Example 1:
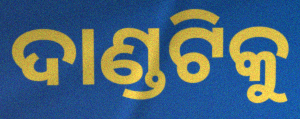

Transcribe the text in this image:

ଦାଣ୍ଡଟିକୁ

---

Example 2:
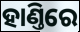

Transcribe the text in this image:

ହାଣ୍ତିରେ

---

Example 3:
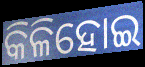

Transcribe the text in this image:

କିଳିହୋଇ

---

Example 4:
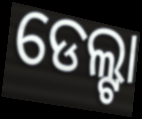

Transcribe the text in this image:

ଡେଲ୍ଟା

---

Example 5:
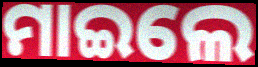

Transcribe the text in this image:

ମାଇଲେ